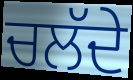
ਚਲੱਦੇ